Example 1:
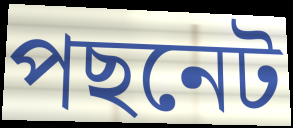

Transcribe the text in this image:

পছনেট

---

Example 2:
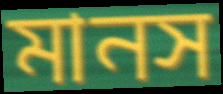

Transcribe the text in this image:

মানস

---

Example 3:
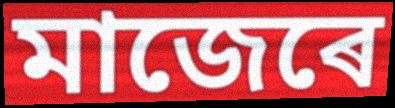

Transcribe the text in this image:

মাজেৰে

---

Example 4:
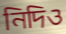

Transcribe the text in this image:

নিদিও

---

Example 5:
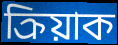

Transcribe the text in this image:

ক্ৰিয়াক